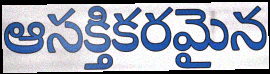
ఆసక్తికరమైన